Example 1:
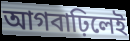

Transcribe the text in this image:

আগবাঢ়িলেই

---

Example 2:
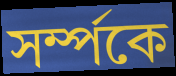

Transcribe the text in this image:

সৰ্ম্পকে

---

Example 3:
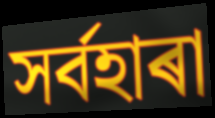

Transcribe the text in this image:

সৰ্বহাৰা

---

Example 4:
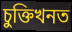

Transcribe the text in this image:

চুক্তিখনত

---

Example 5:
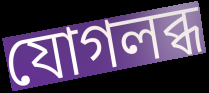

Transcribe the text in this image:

যোগলব্ধ